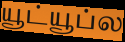
யூட்யூப்ல